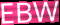
EBW